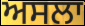
ਅਸਲਾ